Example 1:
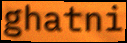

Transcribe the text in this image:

ghatni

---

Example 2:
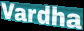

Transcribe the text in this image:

Vardha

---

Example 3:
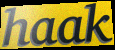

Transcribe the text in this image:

haak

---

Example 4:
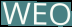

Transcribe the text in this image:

WEO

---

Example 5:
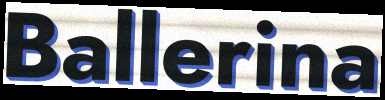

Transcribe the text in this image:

Ballerina